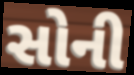
સોની